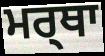
ਮਰ੍ਥਾ